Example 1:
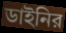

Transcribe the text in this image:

ডাইনির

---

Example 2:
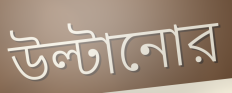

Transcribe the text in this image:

উল্টানোর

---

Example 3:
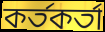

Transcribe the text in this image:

কর্তকর্তা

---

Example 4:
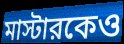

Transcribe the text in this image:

মাস্টারকেও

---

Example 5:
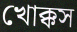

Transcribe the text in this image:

খোক্কস